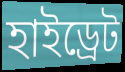
হাইড্রেট